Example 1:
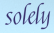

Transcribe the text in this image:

solely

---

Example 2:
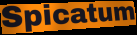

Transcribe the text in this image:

Spicatum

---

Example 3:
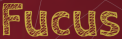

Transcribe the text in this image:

Fucus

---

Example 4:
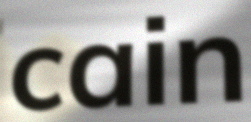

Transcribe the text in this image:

cain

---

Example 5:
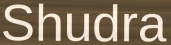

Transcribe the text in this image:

Shudra